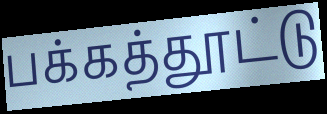
பக்கத்தூட்டு